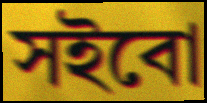
সইবো